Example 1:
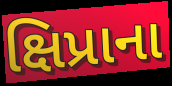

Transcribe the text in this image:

ક્ષિપ્રાના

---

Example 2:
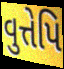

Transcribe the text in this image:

વુત્તેપિ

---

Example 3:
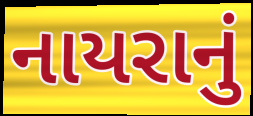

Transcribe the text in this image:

નાયરાનું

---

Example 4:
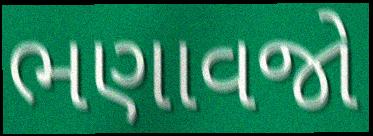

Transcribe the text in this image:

ભણાવજો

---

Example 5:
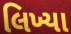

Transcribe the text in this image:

લિખ્યા